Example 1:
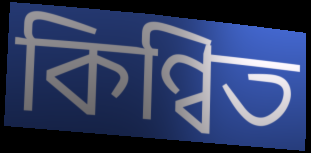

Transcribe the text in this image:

কিণ্বিত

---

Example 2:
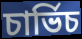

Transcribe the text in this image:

চাৰ্ভিচ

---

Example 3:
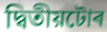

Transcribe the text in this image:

দ্বিতীয়টোৰ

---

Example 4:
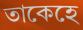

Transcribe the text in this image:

তাকেহে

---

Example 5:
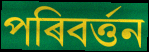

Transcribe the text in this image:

পৰিবৰ্ত্তন